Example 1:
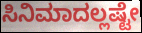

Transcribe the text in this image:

ಸಿನಿಮಾದಲ್ಲಷ್ಟೇ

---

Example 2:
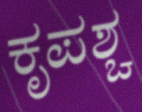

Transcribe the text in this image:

ಕೃಪಶ್ಚ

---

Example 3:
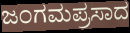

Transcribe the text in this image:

ಜಂಗಮಪ್ರಸಾದ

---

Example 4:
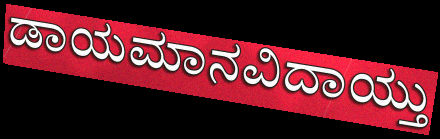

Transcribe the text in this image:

ಡಾಯಮಾನವಿದಾಯ್ತು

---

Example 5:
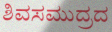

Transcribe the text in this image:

ಶಿವಸಮುದ್ರದ